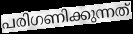
പരിഗണിക്കുന്നത്